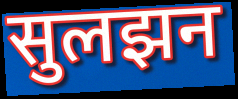
सुलझन